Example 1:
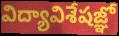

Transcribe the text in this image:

విద్యావిశేషజ్ఞో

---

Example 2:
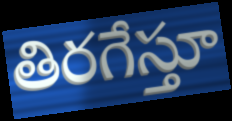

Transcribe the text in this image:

తిరగేస్తూ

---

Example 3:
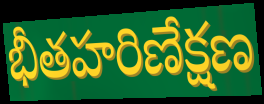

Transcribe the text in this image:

భీతహరిణేక్షణ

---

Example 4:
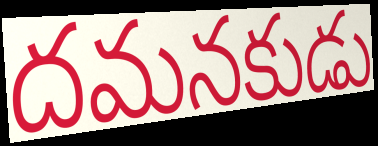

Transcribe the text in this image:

దమనకుడు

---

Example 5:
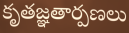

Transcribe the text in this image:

కృతజ్ఞతార్పణలు